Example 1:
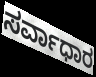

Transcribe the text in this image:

ಸರ್ವಾಧಾರ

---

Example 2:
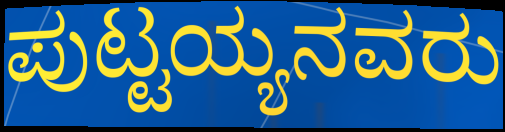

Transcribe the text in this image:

ಪುಟ್ಟಯ್ಯನವರು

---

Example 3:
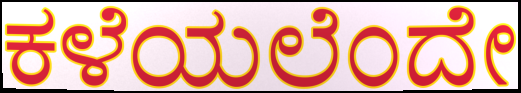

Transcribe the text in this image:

ಕಳೆಯಲೆಂದೇ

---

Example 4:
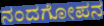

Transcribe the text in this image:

ನಂದಗೋಪನ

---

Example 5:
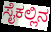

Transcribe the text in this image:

ಸೈಕಲ್ಲಿನ